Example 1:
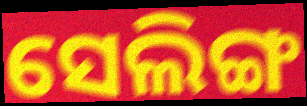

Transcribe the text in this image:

ସେଲିଙ୍ଗ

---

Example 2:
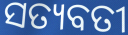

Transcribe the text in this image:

ସତ୍ୟବତୀ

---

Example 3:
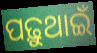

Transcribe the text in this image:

ପଢ଼ୁଥାଇଁ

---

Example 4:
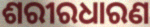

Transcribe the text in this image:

ଶରୀରଧାରଣ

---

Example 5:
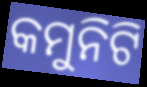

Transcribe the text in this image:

କମୁନିଟି